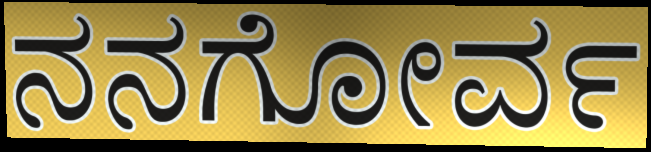
ನನಗೋರ್ವ